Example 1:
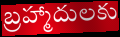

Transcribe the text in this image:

బ్రహ్మాదులకు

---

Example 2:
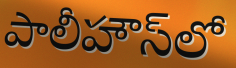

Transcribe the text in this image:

పాలీహౌస్‌లో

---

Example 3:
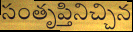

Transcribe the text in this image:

సంతృప్తినిచ్చిన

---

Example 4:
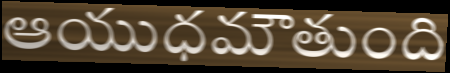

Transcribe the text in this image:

ఆయుధమౌతుంది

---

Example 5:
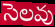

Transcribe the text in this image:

సెలవు